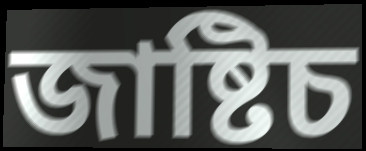
জাষ্টিচ